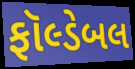
ફૉલ્ડેબલ